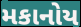
મકાનોય